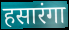
हसारंगा